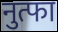
नुत्फा